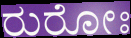
ರುರೋಃ